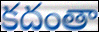
కదంతా